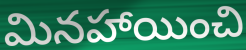
మినహాయించి